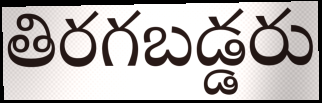
తిరగబడ్డరు